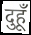
दुहूँ